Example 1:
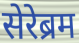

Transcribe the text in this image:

सेरेब्रम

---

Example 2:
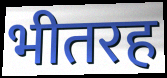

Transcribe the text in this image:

भीतरह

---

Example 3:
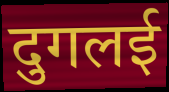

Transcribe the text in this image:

दुगलई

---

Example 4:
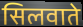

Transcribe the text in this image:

सिलवाते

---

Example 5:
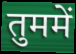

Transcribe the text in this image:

तुममें